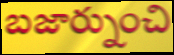
బజార్నుంచి